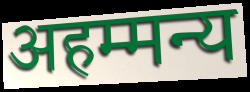
अहम्मन्य